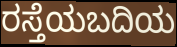
ರಸ್ತೆಯಬದಿಯ